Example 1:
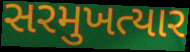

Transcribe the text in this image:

સરમુખત્યાર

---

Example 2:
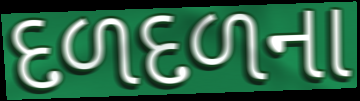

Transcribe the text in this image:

દળદળના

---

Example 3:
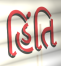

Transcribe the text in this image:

હિંતિ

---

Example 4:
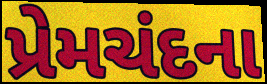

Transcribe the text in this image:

પ્રેમચંદના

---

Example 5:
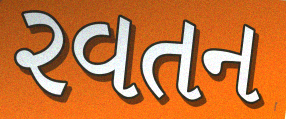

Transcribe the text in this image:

રવતન